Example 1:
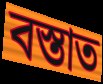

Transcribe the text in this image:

বস্তাত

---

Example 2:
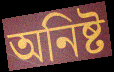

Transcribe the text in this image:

অনিষ্ট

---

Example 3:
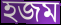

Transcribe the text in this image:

হজম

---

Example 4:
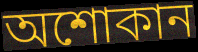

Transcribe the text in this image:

অশোকান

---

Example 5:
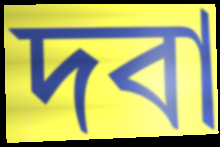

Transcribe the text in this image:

দবা